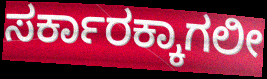
ಸರ್ಕಾರಕ್ಕಾಗಲೀ